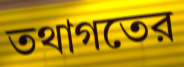
তথাগতের